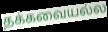
தக்கவையல்ல